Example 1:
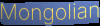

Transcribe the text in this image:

Mongolian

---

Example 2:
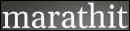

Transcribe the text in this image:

marathit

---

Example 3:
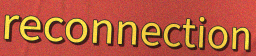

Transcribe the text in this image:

reconnection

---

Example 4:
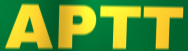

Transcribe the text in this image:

APTT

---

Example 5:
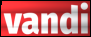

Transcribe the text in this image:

vandi